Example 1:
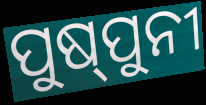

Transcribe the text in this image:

ପୁଷ୍‌ପୁନୀ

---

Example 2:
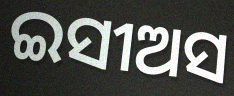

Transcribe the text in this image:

ଇସୀଅସ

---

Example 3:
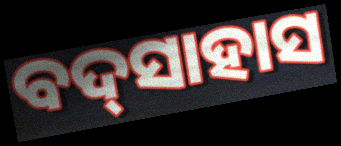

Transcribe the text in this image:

ବଦ୍‌ସାହାସ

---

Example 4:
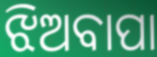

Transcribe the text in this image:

ଝିଅବାପା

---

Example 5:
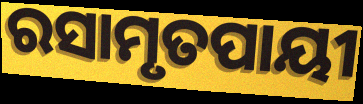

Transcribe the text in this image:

ରସାମୃତପାୟୀ